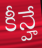
కీన్హే